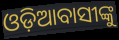
ଓଡ଼ିଆବାସୀଙ୍କୁ